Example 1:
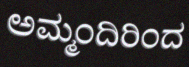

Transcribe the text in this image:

ಅಮ್ಮಂದಿರಿಂದ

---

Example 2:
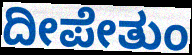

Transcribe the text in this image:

ದೀಪೇತುಂ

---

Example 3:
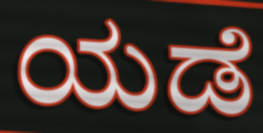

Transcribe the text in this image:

ಯಡೆ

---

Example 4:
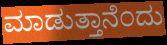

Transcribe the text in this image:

ಮಾಡುತ್ತಾನೆಂದು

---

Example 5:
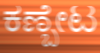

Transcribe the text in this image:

ಕಣ್ಬೇಟ